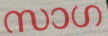
സാഗ